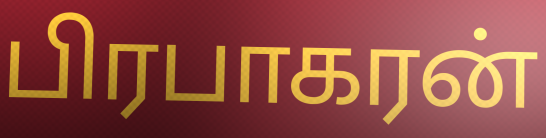
பிரபாகரன்